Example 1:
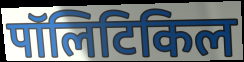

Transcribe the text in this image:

पॉलिटिकिल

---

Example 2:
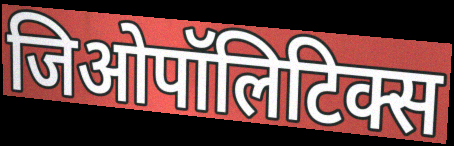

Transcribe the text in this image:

जिओपॉलिटिक्स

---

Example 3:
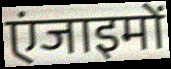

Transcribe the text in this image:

एंजाइमों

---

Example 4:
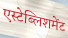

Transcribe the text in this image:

एस्टेब्लिशमेंट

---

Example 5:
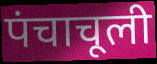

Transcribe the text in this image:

पंचाचूली